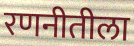
रणनीतीला